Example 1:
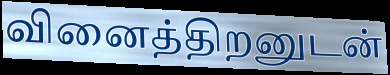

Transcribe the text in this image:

வினைத்திறனுடன்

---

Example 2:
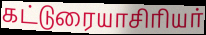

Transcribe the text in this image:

கட்டுரையாசிரியர்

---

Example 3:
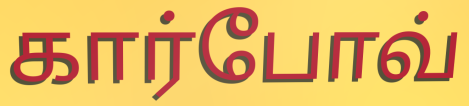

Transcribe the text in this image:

கார்போவ்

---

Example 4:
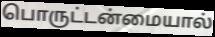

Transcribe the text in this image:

பொருட்டன்மையால்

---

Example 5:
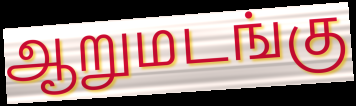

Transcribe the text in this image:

ஆறுமடங்கு